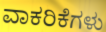
ವಾಕರಿಕೆಗಳು